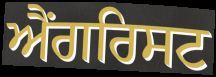
ਐਂਗਰਿਸਟ